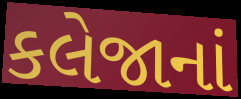
કલેજાનાં